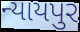
ન્યાયપુર